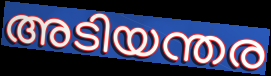
അടിയന്തര